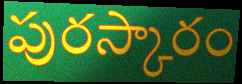
పురస్కారం